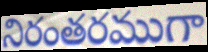
నిరంతరముగా